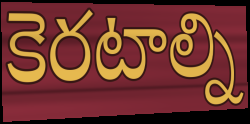
కెరటాల్ని